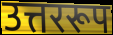
उत्तररूप